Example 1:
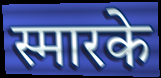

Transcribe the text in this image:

स्मारके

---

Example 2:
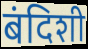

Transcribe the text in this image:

बंदिशी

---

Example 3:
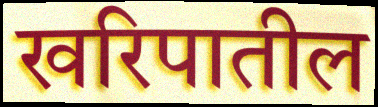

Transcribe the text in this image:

खरिपातील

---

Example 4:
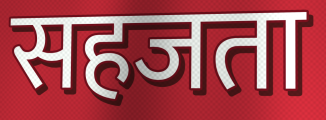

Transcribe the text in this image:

सहजता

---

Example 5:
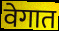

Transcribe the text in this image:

वेगात